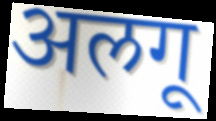
अलगू